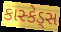
કાસ્કેડ્સ